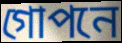
গোপনে